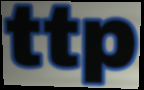
ttp